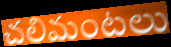
చలిమంటలు